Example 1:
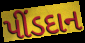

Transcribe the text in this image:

પીંડદાન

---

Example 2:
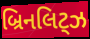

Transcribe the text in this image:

બ્રિનલિટ્ઝ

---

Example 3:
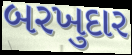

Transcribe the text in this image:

બરખુદાર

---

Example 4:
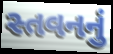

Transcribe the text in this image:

સ્તવનનું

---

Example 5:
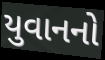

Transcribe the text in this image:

યુવાનનો